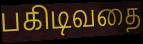
பகிடிவதை